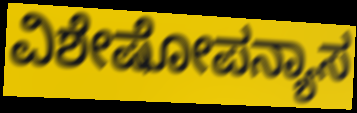
ವಿಶೇಷೋಪನ್ಯಾಸ